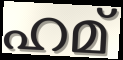
ഹമ്